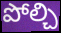
పోల్చి